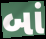
બાં